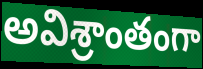
అవిశ్రాంతంగా